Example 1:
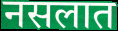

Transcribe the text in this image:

नसलात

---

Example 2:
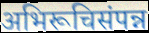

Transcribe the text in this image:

अभिरूचिसंपन्न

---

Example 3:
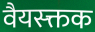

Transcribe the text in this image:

वैयस्क्तक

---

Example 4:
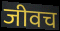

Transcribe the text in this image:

जीवच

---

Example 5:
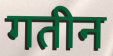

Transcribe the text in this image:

गतीन